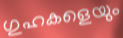
ഗുഹകളെയും